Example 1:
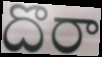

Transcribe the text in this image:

దొరా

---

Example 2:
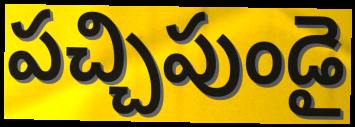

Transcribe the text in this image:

పచ్చిపుండై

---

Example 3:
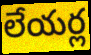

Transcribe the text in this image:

లేయర్ల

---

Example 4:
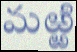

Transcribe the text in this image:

మఱ్ఱి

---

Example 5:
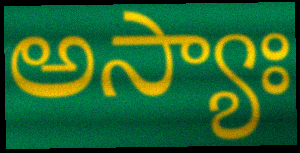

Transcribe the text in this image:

అస్యాః